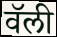
वॅली